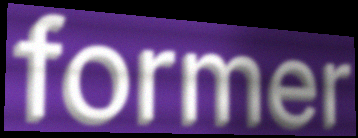
former